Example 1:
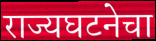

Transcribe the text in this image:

राज्यघटनेचा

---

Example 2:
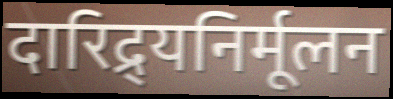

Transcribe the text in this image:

दारिद्र्यनिर्मूलन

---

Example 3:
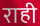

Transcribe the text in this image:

राही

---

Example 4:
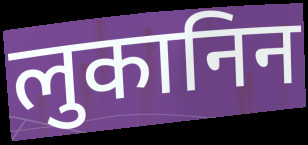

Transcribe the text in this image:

लुकानिन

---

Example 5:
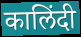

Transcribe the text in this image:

कालिंदी